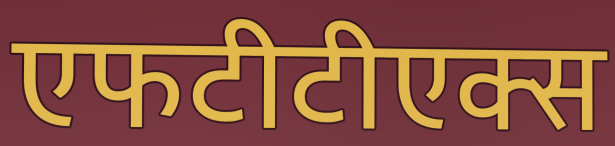
एफटीटीएक्स